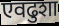
एवढुशा